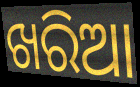
ଖରିଆ